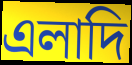
এলাদি